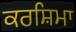
ਕਰਸ਼ਿਮਾ